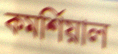
কমর্শিয়াল